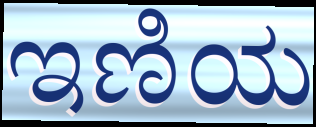
ಇಣಿಯ